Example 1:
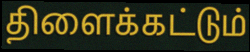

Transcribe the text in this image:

திளைக்கட்டும்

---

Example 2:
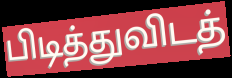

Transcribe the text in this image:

பிடித்துவிடத்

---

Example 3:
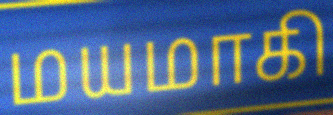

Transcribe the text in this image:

மயமாகி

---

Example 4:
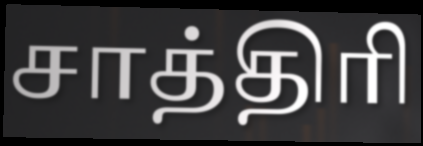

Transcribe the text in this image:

சாத்திரி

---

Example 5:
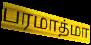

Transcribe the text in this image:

பரமாத்மா